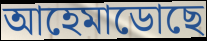
আহেমাডোছে